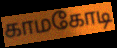
காமகோடி